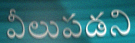
వీలుపడని